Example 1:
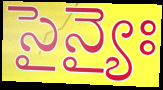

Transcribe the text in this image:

సైన్యైః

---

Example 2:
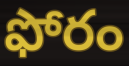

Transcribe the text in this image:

ఫోరం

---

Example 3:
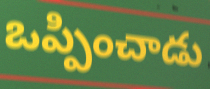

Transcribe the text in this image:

ఒప్పించాడు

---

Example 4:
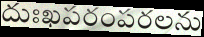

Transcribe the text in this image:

దుఃఖపరంపరలను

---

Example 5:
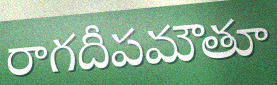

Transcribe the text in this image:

రాగదీపమౌతూ